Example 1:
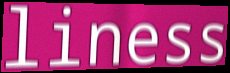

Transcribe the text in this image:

liness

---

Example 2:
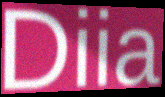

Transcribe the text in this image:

Diia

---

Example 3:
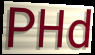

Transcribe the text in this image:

PHd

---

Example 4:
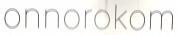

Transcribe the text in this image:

onnorokom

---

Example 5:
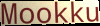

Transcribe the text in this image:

Mookku